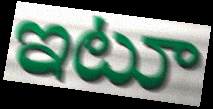
ఇటూ